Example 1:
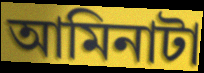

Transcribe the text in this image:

আমিনাটা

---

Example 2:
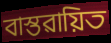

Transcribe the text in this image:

বাস্তৱায়িত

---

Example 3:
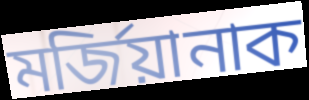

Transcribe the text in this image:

মৰ্জিয়ানাক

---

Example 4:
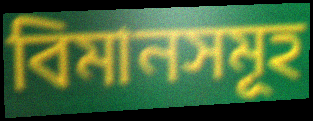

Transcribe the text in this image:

বিমানসমূহ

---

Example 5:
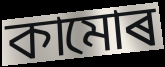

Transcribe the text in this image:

কামোৰ